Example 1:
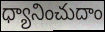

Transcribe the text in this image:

ధ్యానించుదాం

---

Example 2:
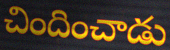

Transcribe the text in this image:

చిందించాడు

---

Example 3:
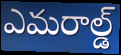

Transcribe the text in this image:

ఎమరాల్డ్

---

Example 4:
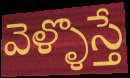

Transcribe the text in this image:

వెళ్ళొస్తే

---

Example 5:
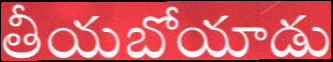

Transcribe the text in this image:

తీయబోయాడు